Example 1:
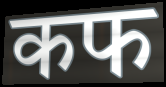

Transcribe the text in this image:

कफ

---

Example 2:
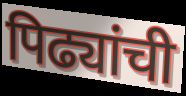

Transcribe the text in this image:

पिढ्यांची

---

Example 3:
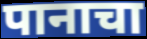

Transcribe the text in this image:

पानाचा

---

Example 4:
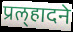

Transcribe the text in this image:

प्रल्हादने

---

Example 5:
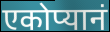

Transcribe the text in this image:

एकोप्यानं